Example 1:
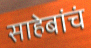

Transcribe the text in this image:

साहेबांचं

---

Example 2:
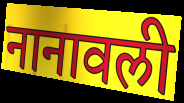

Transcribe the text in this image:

नानावली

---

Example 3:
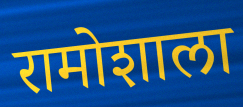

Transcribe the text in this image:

रामोशाला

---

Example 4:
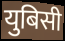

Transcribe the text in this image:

युबिसी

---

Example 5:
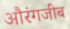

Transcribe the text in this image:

औरंगजीब